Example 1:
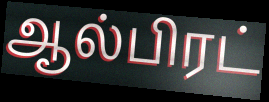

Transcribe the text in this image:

ஆல்பிரட்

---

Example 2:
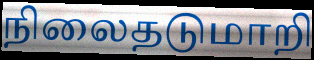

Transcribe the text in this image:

நிலைதடுமாறி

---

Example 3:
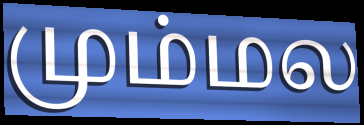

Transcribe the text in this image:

மும்மல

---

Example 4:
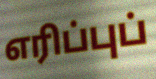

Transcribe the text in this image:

எரிப்புப்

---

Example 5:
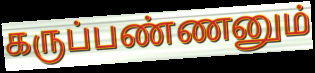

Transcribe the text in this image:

கருப்பண்ணனும்